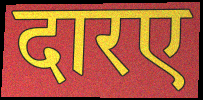
दारए